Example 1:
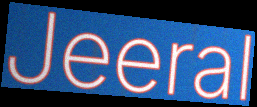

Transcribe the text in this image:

Jeeral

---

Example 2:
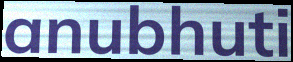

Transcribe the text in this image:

anubhuti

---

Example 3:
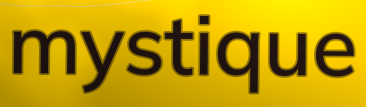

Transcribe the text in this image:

mystique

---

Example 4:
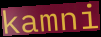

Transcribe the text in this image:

kamni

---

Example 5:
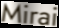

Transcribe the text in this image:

Mirai